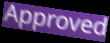
Approved